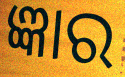
ଜ୍ଞାର